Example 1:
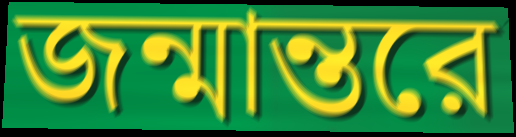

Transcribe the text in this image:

জন্মান্তরে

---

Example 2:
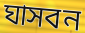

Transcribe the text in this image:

ঘাসবন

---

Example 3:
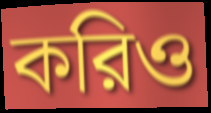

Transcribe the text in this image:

করিও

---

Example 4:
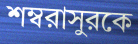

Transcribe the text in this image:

শম্বরাসুরকে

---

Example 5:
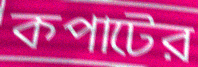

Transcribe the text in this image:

কপাটের